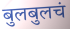
बुलबुलचं